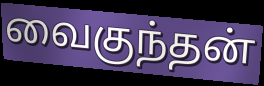
வைகுந்தன்